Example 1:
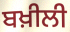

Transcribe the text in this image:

ਬਖ਼ੀਲੀ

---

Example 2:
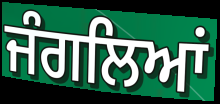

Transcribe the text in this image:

ਜੰਗਲਿਆਂ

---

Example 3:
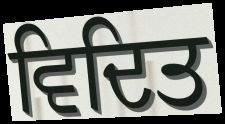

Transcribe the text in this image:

ਵਿਦਿਤ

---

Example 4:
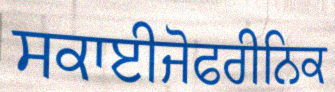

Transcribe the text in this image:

ਸਕਾਈਜੋਫਰੀਨਿਕ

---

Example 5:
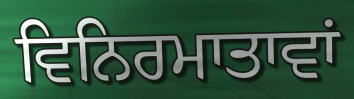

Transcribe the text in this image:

ਵਿਨਿਰਮਾਤਾਵਾਂ